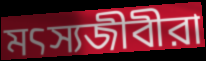
মৎস্যজীবীরা